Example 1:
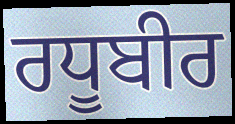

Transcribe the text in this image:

ਰਧੂਬੀਰ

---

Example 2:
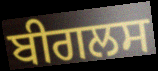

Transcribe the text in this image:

ਬੀਗਲਸ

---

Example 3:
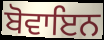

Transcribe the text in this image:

ਬੋਵਾਇਨ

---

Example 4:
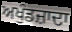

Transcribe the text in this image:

ਅਖੁੰਡਜ਼ਾਦਾ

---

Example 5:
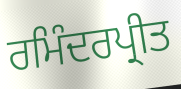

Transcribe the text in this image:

ਰਮਿੰਦਰਪ੍ਰੀਤ